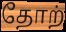
தோற்